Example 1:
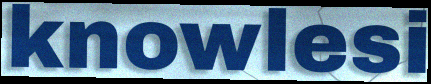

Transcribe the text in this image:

knowlesi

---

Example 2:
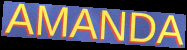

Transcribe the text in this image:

AMANDA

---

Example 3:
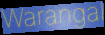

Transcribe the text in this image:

Warangal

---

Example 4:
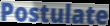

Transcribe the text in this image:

Postulate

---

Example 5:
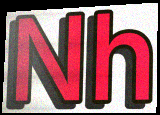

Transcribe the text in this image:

Nh